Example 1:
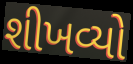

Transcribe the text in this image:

શીખવ્યો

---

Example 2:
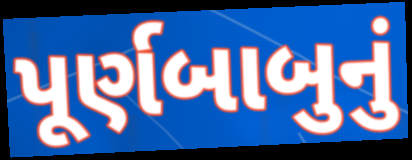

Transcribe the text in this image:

પૂર્ણબાબુનું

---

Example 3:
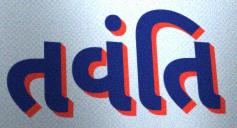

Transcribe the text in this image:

તવંતિ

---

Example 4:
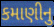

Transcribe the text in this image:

કમાણીનુ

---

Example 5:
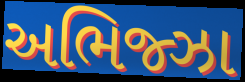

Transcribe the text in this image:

અભિજ્ઝા